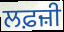
ਲਫ਼ਜ਼ੀ